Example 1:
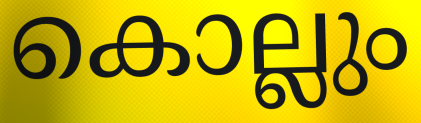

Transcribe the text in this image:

കൊല്ലും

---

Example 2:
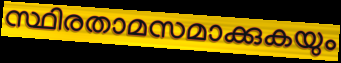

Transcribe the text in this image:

സ്ഥിരതാമസമാക്കുകയും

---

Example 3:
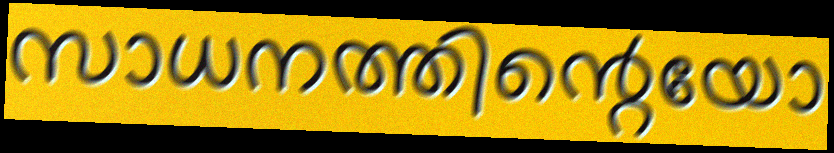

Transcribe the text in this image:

സാധനത്തിന്റെയോ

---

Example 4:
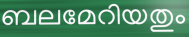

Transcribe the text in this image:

ബലമേറിയതും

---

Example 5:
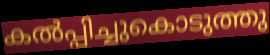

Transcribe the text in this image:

കൽപ്പിച്ചുകൊടുത്തു